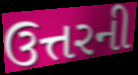
ઉત્તરની